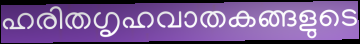
ഹരിതഗൃഹവാതകങ്ങളുടെ